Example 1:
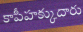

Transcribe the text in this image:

కాపీహక్కుదారు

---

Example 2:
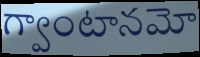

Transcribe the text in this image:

గ్వాంటానమో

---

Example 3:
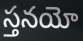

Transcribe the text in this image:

స్తనయో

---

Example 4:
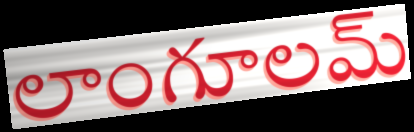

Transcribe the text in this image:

లాంగూలమ్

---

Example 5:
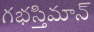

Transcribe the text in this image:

గభస్తిమాన్